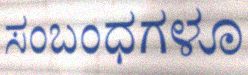
ಸಂಬಂಧಗಳೂ